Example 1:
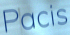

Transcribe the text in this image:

Pacis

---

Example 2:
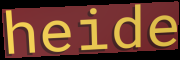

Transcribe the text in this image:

heide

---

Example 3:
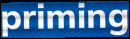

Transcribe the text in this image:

priming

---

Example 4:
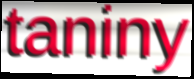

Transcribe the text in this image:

taniny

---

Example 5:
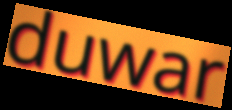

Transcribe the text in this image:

duwar